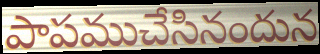
పాపముచేసినందున